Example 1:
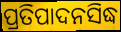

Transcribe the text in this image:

ପ୍ରତିପାଦନସିଦ୍ଧ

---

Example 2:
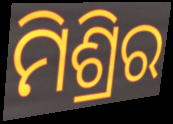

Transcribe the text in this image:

ମିଶ୍ରିର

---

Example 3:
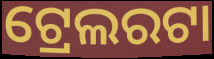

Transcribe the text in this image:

ଟ୍ରେଲରଟା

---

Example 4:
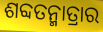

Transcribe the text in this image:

ଶବ୍ଦତନ୍ମାତ୍ରାର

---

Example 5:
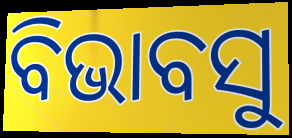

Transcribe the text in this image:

ବିଭାବସୁ